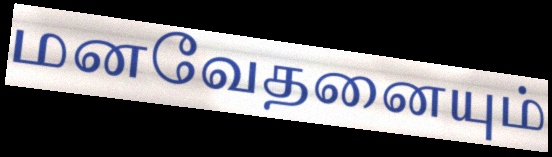
மனவேதனையும்